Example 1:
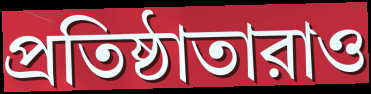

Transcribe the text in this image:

প্রতিষ্ঠাতারাও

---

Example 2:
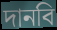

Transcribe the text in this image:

দানবি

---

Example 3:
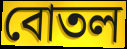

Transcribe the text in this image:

বোতল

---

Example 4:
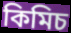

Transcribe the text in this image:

কিমিচ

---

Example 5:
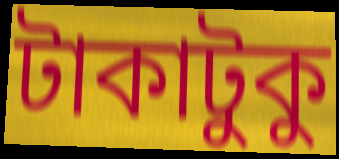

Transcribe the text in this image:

টাকাটুকু